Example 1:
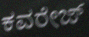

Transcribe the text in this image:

ಕವರೇಜ್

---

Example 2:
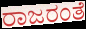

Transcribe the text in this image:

ರಾಜರಂತೆ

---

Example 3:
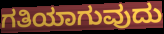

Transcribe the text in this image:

ಗತಿಯಾಗುವುದು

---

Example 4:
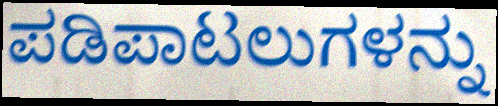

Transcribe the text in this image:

ಪಡಿಪಾಟಲುಗಳನ್ನು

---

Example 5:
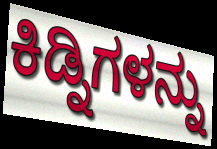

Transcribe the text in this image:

ಕಿಡ್ನಿಗಳನ್ನು